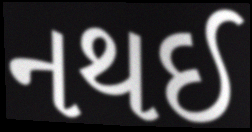
નથઈ